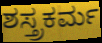
ಶಸ್ತ್ರಕರ್ಮ